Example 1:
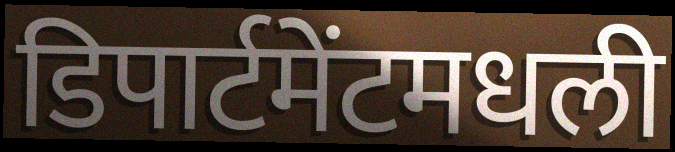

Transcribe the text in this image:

डिपार्टमेंटमधली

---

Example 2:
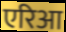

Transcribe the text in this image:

एरिआ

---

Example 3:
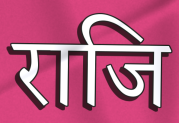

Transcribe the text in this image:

राजि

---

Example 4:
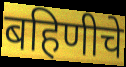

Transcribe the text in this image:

बहिणीचे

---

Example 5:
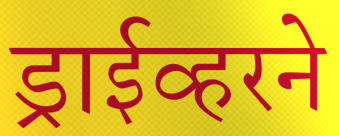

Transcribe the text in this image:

ड्राईव्हरने